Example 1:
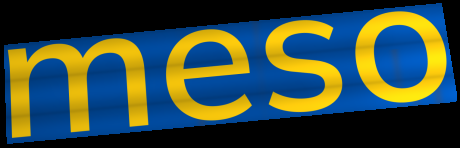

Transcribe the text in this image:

meso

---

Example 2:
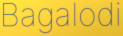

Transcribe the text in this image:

Bagalodi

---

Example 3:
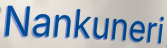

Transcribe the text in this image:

Nankuneri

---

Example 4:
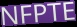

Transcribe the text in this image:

NFPTE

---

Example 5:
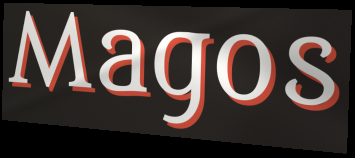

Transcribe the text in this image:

Magos